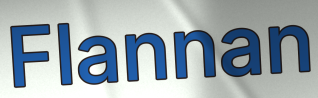
Flannan